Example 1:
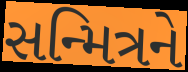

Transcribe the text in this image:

સન્મિત્રને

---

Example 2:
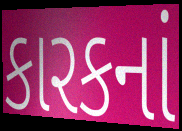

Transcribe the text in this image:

કારકનાં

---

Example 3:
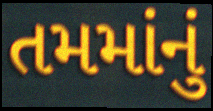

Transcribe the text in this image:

તમમાંનું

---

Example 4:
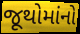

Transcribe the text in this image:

જૂથોમાંનો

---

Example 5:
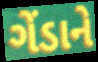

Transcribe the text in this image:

ગેંડાને